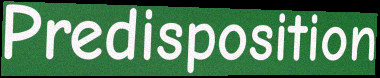
Predisposition